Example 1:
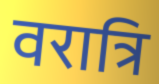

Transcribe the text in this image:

वरात्रि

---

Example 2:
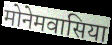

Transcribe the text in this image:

मोनेमवासिया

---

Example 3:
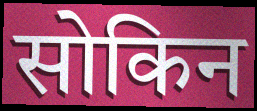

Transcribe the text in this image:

सोकिन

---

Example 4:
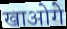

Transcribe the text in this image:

खाओगे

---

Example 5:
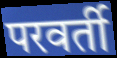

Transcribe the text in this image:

परवर्ती